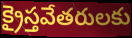
క్రైస్తవేతరులకు